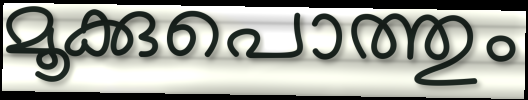
മൂക്കുപൊത്തും